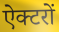
ऐक्टरों